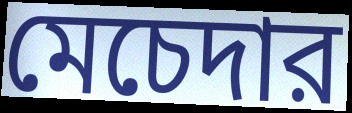
মেচেদার